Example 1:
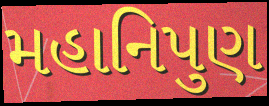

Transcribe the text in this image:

મહાનિપુણ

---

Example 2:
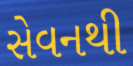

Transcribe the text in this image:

સેવનથી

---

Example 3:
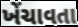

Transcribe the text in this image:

ખેંચાવતા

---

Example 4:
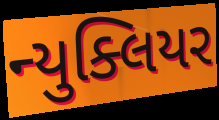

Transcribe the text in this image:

ન્યુક્લિયર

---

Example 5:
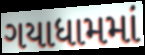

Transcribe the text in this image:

ગયાધામમાં